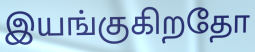
இயங்குகிறதோ